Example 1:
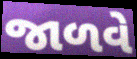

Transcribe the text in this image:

જાળવે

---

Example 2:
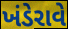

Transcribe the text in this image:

ખંડેરાવે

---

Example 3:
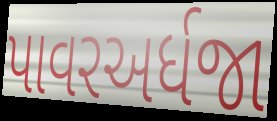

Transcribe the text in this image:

પાવરઅર્ધજા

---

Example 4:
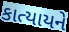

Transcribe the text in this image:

કાત્યાયને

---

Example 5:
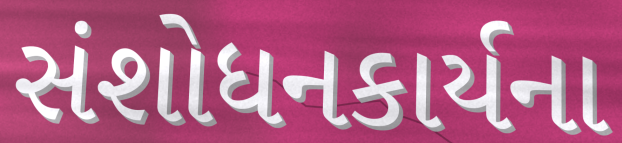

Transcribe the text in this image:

સંશોધનકાર્યના